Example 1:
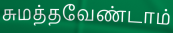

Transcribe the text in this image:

சுமத்தவேண்டாம்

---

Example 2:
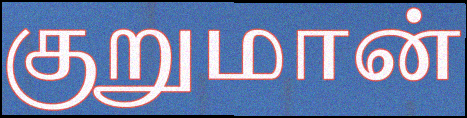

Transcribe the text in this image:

குறுமான்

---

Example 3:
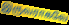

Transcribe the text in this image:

இருவராகவே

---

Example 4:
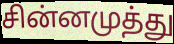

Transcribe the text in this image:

சின்னமுத்து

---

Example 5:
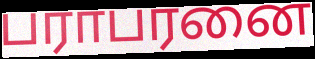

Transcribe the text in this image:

பராபரனை